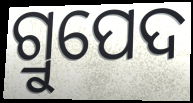
ଗ୍ରୁପେଦ